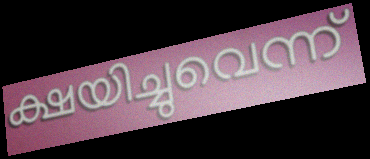
ക്ഷയിച്ചുവെന്ന്